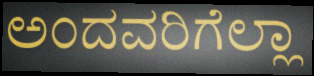
ಅಂದವರಿಗೆಲ್ಲಾ